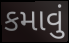
કમાવું